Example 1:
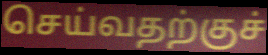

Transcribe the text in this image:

செய்வதற்குச்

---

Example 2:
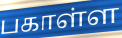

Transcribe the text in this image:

பகாள்ள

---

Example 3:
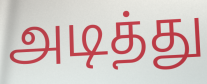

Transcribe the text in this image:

அடித்து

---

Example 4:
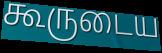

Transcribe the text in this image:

கூருடைய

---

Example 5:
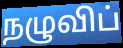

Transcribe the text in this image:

நழுவிப்